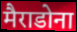
मैराडोना